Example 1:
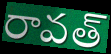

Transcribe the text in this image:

రావత్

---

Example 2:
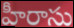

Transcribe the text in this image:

హీరాసు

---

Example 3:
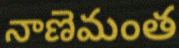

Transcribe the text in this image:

నాణెమంత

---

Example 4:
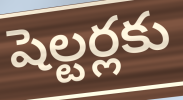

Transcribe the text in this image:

షెల్టర్లకు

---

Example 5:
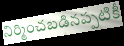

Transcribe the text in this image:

నిర్మించబడినప్పటికీ